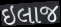
ઇલાજ